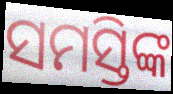
ସମସ୍ତିଙ୍କ